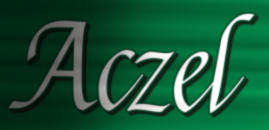
Aczel